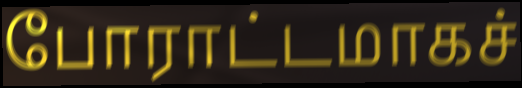
போராட்டமாகச்